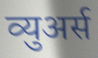
व्युअर्स